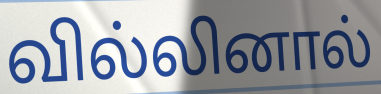
வில்லினால்